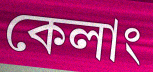
কেলাং